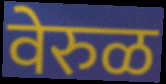
वेरुळ